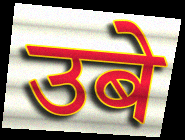
उबे